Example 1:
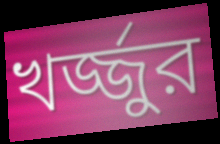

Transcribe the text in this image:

খর্জ্জুর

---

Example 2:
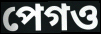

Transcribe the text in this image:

পেগও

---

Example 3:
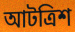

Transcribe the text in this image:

আটত্রিশ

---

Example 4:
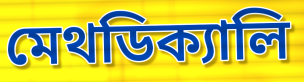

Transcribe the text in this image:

মেথডিক্যালি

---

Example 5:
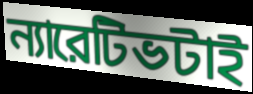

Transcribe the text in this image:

ন্যারেটিভটাই